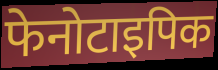
फेनोटाइपिक